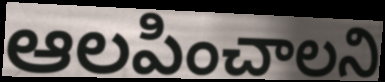
ఆలపించాలని